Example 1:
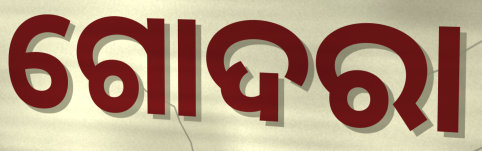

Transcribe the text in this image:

ଗୋଦରା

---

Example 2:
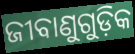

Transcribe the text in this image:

ଜୀବାଣୁଗୁଡ଼ିକ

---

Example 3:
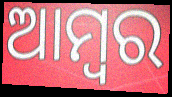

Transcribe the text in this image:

ଆମ୍ବର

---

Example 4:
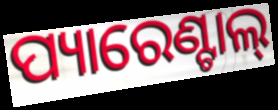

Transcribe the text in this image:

ପ୍ୟାରେଣ୍ଟାଲ୍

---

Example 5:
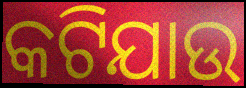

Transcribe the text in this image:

କଟିଯାଉ